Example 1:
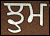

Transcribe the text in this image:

ਝੁਮ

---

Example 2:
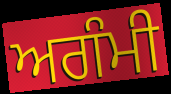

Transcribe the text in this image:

ਅਗੰਮੀ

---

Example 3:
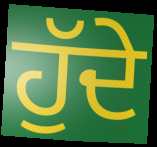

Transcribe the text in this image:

ਹੁੱਦੇ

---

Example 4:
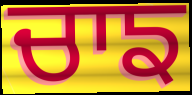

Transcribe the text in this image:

ਚਾਙ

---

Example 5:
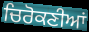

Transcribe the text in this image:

ਚਿਰੋਕਣੀਆਂ